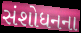
સંશોધનના